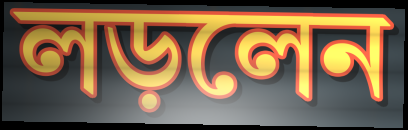
লড়লেন